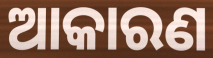
ଆକାରଣ